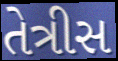
તેત્રીસ